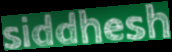
siddhesh